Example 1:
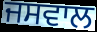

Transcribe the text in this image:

ਜਸਵਾਲ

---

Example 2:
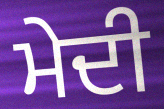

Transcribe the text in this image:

ਮੇਦੀ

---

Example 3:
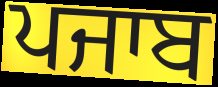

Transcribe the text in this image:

ਪਜਾਬ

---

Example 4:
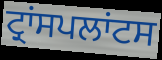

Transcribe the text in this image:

ਟ੍ਰਾਂਸਪਲਾਂਟਸ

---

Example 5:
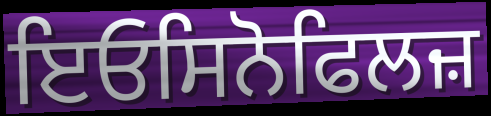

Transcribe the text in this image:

ਇਓਸਿਨੋਫਿਲਜ਼